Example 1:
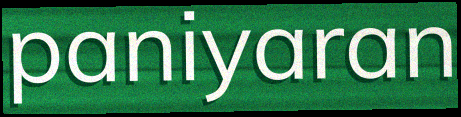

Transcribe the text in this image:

paniyaran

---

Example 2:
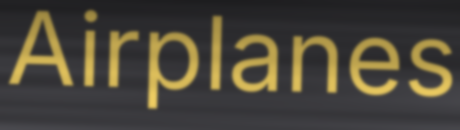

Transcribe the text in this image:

Airplanes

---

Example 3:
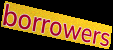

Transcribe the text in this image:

borrowers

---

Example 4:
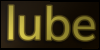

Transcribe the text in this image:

lube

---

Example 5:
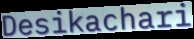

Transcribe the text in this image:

Desikachari